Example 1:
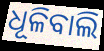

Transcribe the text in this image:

ଧୂଳିବାଲି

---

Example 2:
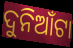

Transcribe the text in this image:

ଦୁନିଆଁଟା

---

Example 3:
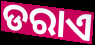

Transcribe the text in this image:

ଡରାଏ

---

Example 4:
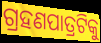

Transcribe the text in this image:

ଗ୍ରହଣପାତ୍ରଟିକୁ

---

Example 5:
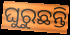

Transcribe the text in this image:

ଘୁରୁଛନ୍ତି